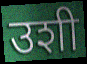
उशी